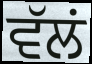
ਵੱਲਂ